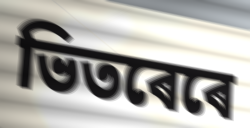
ভিতৰেৰে